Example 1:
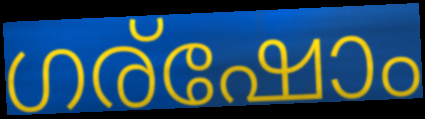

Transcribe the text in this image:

ഗര്ഷോം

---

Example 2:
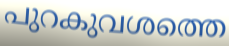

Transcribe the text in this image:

പുറകുവശത്തെ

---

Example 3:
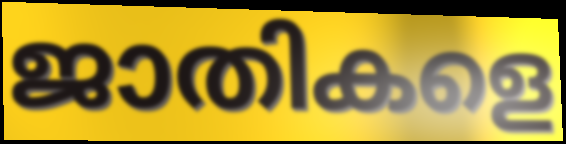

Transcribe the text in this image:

ജാതികളെ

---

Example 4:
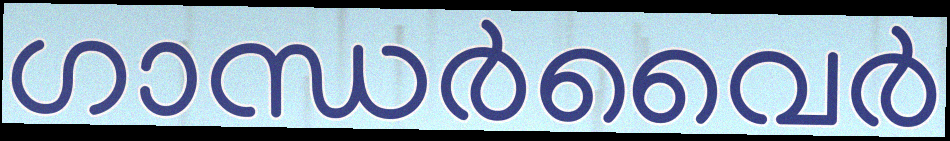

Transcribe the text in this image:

ഗാന്ധർവൈർ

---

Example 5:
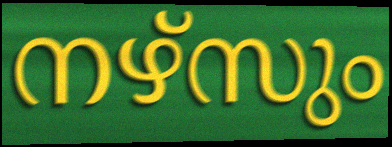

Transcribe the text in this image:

നഴ്സും